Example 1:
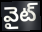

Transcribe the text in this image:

వైట్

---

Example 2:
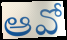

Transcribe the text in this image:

ఆవో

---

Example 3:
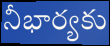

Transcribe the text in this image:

నీభార్యకు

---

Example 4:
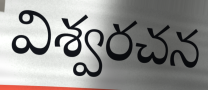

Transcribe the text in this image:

విశ్వరచన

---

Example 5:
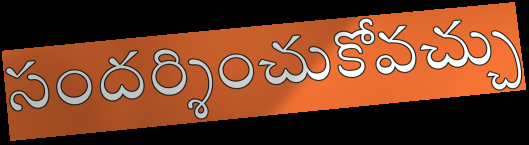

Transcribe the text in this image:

సందర్శించుకోవచ్చు